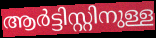
ആർട്ടിസ്റ്റിനുള്ള